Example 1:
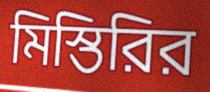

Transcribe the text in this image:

মিস্তিরির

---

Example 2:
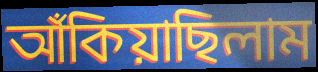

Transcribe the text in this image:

আঁকিয়াছিলাম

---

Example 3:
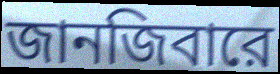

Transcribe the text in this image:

জানজিবারে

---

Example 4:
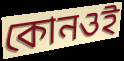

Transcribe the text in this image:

কোনওই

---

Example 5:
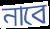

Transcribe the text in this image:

নাবে